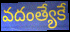
వదంత్యేకే